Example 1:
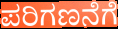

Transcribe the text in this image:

ಪರಿಗಣನೆಗೆ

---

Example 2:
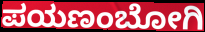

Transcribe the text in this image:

ಪಯಣಂಬೋಗಿ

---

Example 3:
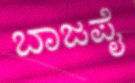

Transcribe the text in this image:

ಬಾಜಪೈ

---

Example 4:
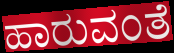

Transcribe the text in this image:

ಹಾರುವಂತೆ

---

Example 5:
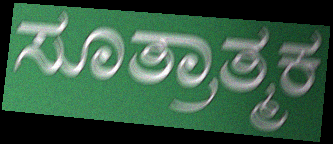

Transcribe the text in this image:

ಸೂತ್ರಾತ್ಮಕ